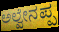
ಅಲ್ವೇನಪ್ಪ